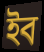
ইব